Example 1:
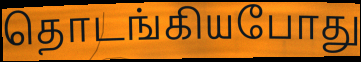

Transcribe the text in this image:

தொடங்கியபோது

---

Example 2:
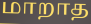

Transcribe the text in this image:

மாறாத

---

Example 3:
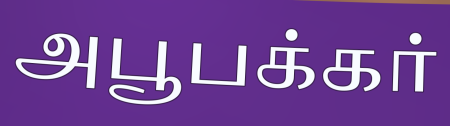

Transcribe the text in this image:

அபூபக்கர்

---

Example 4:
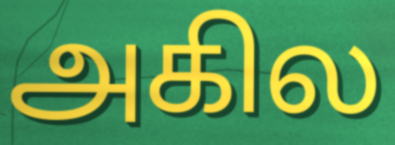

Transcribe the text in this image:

அகில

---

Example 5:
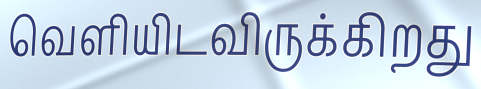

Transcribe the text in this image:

வெளியிடவிருக்கிறது